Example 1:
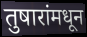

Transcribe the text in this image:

तुषारांमधून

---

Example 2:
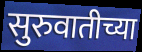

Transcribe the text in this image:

सुरुवातीच्या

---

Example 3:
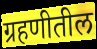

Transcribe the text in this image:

ग्रहणीतील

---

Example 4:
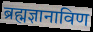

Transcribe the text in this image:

ब्रह्मज्ञानाविण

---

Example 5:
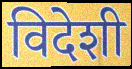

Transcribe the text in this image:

विदेशी